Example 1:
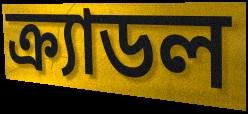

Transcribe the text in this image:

ক্র্যাডল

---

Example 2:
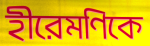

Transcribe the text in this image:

হীরেমণিকে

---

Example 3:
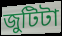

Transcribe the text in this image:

জুটিটা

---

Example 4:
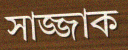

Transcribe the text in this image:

সাজ্জাক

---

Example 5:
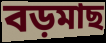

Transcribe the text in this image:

বড়মাছ